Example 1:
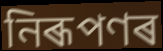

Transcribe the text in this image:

নিৰূপণৰ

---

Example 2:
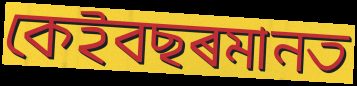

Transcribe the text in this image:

কেইবছৰমানত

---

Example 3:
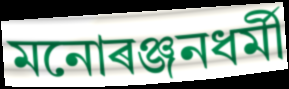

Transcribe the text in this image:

মনোৰঞ্জনধৰ্মী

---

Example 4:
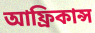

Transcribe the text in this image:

আফ্ৰিকান্স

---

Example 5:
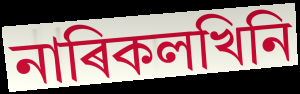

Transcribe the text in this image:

নাৰিকলখিনি